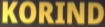
KORIND